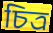
চিত্ৰ